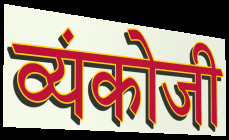
व्यंकोजी